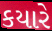
કયારે